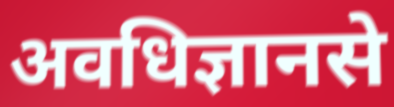
अवधिज्ञानसे